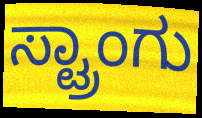
ಸ್ಟ್ರಾಂಗು